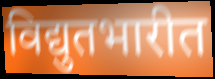
विद्युतभारीत